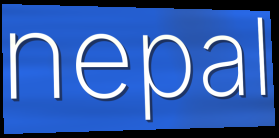
nepal